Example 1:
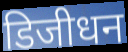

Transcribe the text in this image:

डिजीधन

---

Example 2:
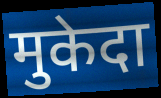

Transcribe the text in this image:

मुकेदा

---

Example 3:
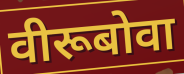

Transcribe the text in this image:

वीरूबोवा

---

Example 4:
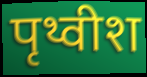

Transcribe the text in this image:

पृथ्वीश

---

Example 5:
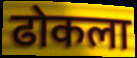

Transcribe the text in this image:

ढोकला